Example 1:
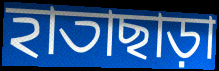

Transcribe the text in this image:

হাতাছাড়া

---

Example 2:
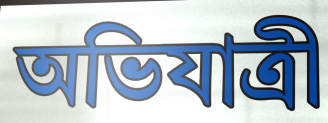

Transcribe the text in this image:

অভিযাত্রী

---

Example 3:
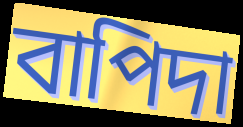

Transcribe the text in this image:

বাপিদা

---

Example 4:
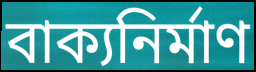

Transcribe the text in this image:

বাক্যনির্মাণ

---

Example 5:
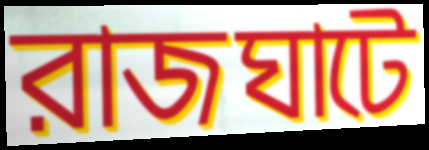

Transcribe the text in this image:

রাজঘাটে